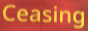
Ceasing